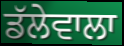
ਡੱਲੇਵਾਲਾ